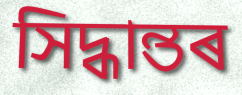
সিদ্ধান্তৰ